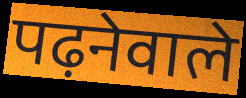
पढ़नेवाले